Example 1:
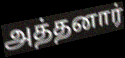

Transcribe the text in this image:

அத்தனார்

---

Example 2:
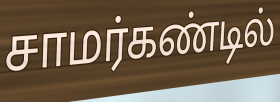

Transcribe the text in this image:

சாமர்கண்டில்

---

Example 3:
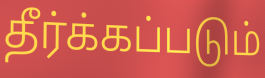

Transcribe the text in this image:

தீர்க்கப்படும்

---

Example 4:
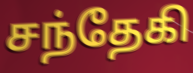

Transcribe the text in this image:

சந்தேகி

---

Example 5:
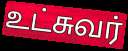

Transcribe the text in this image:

உட்சுவர்